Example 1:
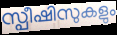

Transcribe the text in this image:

സ്പീഷിസുകളും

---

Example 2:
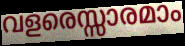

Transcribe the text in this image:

വളരെസ്സാരമാം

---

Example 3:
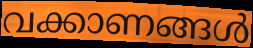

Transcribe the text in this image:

വക്കാണങ്ങൾ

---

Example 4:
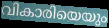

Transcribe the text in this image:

വികാരിയെയും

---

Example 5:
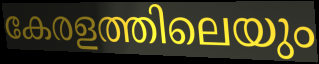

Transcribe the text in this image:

കേരളത്തിലെയും